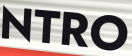
NTRO